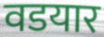
वडयार